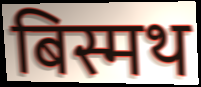
बिस्मथ